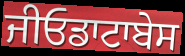
ਜੀਓਡਾਟਾਬੇਸ